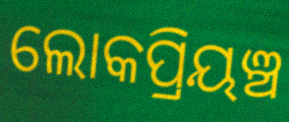
ଲୋକପ୍ରିୟଞ୍ଚ